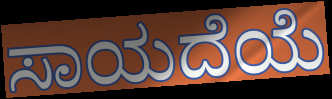
ಸಾಯದೆಯೆ